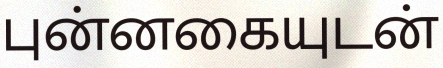
புன்னகையுடன்